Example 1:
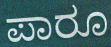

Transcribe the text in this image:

ಪಾರೂ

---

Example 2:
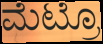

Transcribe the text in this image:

ಮೆಟ್ರೊ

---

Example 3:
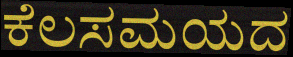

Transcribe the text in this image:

ಕೆಲಸಮಯದ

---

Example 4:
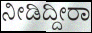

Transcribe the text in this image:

ನೀಡಿದ್ದೀರಾ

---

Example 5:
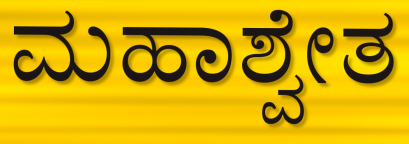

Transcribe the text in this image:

ಮಹಾಶ್ವೇತ